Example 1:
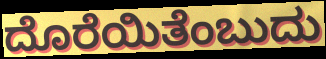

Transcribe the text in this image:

ದೊರೆಯಿತೆಂಬುದು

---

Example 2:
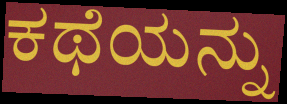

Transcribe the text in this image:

ಕಥೆಯನ್ನು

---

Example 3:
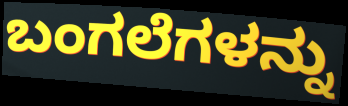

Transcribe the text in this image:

ಬಂಗಲೆಗಳನ್ನು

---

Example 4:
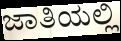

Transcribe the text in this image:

ಜಾತಿಯಲ್ಲಿ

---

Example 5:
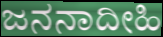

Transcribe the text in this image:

ಜನನಾದೀಹಿ